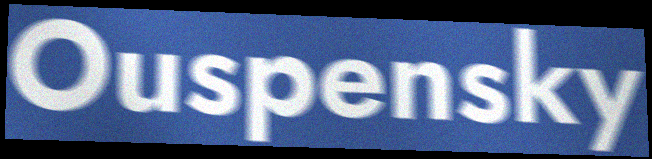
Ouspensky